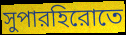
সুপারহিরোতে